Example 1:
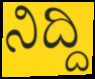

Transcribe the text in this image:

ನಿದ್ದಿ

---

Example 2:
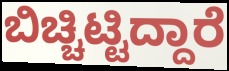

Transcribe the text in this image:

ಬಿಚ್ಚಿಟ್ಟಿದ್ದಾರೆ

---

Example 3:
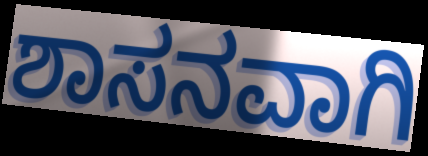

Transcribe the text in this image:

ಶಾಸನವಾಗಿ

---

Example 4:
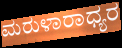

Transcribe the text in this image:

ಮರುಳಾರಾಧ್ಯರ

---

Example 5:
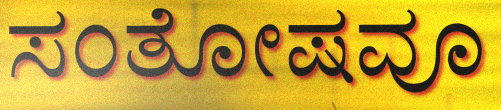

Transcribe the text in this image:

ಸಂತೋಷವೂ